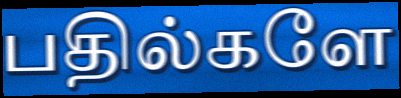
பதில்களே